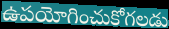
ఉపయోగించుకోగలడు